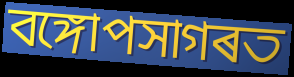
বঙ্গোপসাগৰত